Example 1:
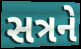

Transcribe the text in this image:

સત્રને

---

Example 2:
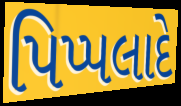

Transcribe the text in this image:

પિપ્પલાદે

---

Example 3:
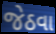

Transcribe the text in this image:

જેઠવા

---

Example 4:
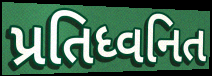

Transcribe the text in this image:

પ્રતિધ્વનિત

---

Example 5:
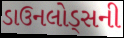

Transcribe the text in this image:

ડાઉનલોડ્સની